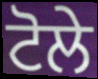
ਟੋਲੇ